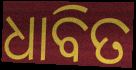
ଧାବିତ